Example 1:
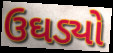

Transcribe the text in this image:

ઉઘડ્યો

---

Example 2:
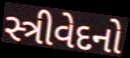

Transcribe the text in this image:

સ્ત્રીવેદનો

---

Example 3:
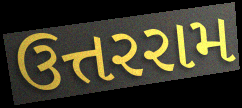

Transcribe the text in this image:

ઉત્તરરામ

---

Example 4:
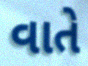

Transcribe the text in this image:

વાતે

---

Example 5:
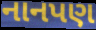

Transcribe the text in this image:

નાનપણ